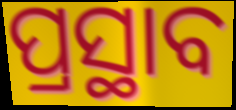
ପ୍ରସ୍ଥାବ